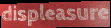
displeasure